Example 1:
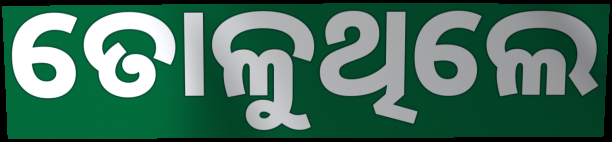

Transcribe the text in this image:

ତୋଳୁଥିଲେ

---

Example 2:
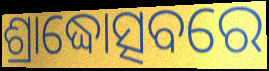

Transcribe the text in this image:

ଶ୍ରାଦ୍ଧୋତ୍ସବରେ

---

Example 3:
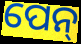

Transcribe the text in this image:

ପେନ୍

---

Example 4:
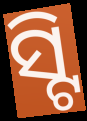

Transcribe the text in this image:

ସ୍ଟି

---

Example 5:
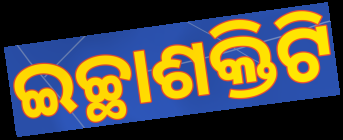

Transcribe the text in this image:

ଇଚ୍ଛାଶକ୍ତିଟି